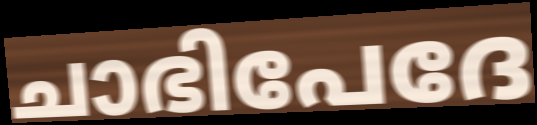
ചാഭിപേദേ